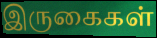
இருகைகள்